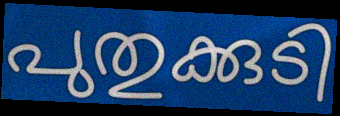
പുതുക്കുടി